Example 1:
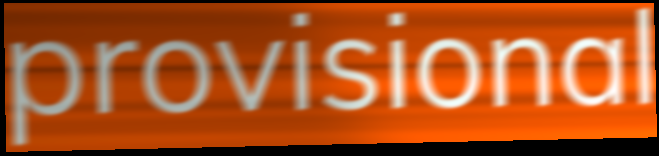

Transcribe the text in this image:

provisional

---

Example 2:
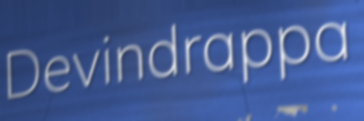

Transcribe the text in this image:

Devindrappa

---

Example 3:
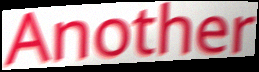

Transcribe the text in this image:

Another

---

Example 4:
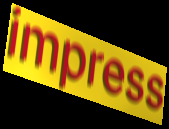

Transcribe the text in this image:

impress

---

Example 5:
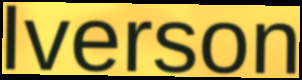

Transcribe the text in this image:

Iverson